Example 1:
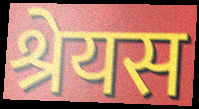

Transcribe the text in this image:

श्रेयस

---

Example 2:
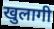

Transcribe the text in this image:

खुलागी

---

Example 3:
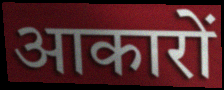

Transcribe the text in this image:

आकारों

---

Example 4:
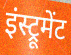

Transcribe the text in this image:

इंस्ट्रूमेंट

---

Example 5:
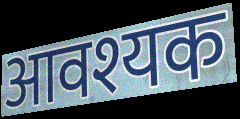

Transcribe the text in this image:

आवश्यक